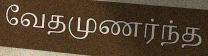
வேதமுணர்ந்த